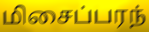
மிசைப்பரந்